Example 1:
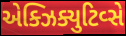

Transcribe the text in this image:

એક્ઝિક્યુટિવ્સે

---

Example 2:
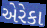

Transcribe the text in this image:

એરેકા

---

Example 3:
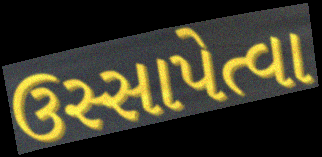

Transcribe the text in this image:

ઉસ્સાપેત્વા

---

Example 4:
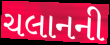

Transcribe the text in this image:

ચલાનની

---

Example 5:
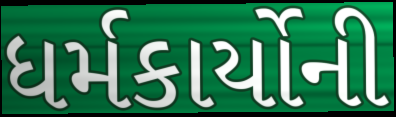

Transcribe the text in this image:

ધર્મકાર્યોની